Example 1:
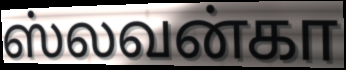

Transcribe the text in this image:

ஸ்லவன்கா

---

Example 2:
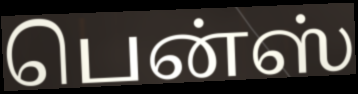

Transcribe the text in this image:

பென்ஸ்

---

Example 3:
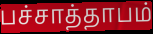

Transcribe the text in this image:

பச்சாத்தாபம்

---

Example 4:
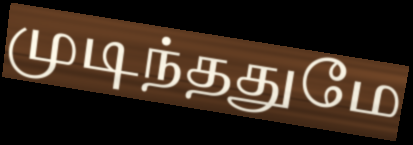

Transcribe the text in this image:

முடிந்ததுமே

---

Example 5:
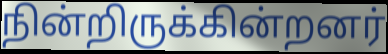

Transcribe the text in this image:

நின்றிருக்கின்றனர்